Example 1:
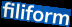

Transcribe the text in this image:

filiform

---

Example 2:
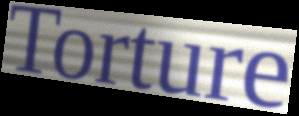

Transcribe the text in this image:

Torture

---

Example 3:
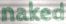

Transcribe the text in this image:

naked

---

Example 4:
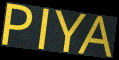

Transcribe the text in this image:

PIYA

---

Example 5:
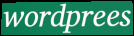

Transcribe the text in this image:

wordprees